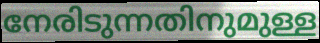
നേരിടുന്നതിനുമുള്ള